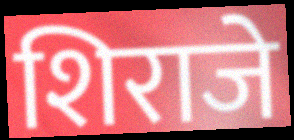
शिराजे